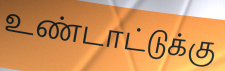
உண்டாட்டுக்கு